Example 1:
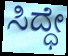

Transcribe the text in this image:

ಸಿದ್ಧೇ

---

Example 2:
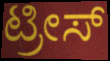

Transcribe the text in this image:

ಟ್ರೀಸ್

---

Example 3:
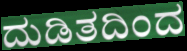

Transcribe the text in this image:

ದುಡಿತದಿಂದ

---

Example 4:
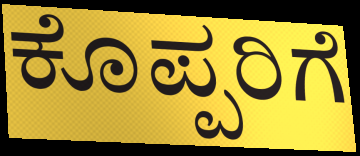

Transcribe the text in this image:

ಕೊಪ್ಪರಿಗೆ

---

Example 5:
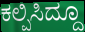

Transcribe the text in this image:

ಕಲ್ಪಿಸಿದ್ದೂ